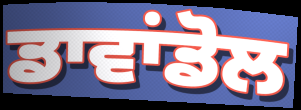
ਡਾਵਾਂਡੋਲ